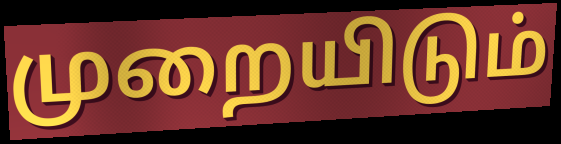
முறையிடும்